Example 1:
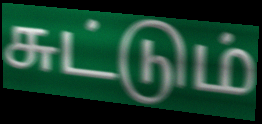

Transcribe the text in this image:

சுட்டும்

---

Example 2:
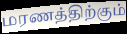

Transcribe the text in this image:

மரணத்திற்கும்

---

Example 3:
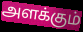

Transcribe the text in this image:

அளக்கும்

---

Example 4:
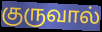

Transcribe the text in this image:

குருவால்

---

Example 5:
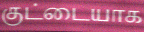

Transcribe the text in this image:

குட்டையாக